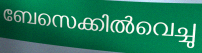
ബേസെക്കിൽവെച്ചു